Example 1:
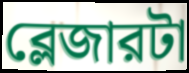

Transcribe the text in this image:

ব্লেজারটা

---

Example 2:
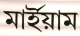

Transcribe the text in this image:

মার্ইয়াম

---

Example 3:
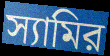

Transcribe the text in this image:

স্যামির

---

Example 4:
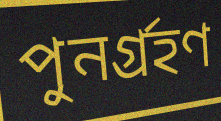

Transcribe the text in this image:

পুনর্গ্রহণ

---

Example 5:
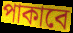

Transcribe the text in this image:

পাকাবে